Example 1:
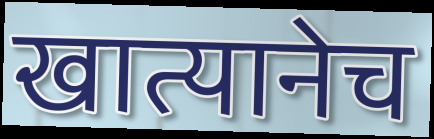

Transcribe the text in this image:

खात्यानेच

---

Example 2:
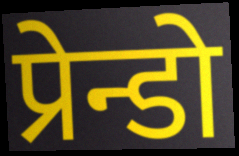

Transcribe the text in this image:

प्रेन्डो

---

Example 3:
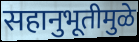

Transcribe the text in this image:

सहानुभूतीमुळे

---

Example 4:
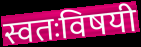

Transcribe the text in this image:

स्वतःविषयी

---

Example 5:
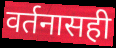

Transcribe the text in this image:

वर्तनासही